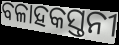
ବଳାହକସ୍ତନୀ